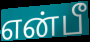
என்பீ